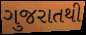
ગુજરાતથી